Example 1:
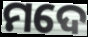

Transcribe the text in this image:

ମଦେ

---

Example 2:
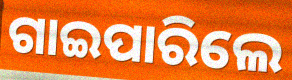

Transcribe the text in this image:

ଗାଇପାରିଲେ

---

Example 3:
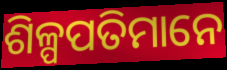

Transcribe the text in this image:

ଶିଳ୍ପପତିମାନେ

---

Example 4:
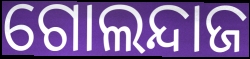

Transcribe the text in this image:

ଗୋଲନ୍ଦାଜ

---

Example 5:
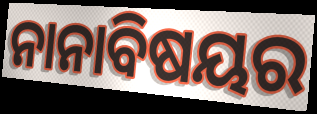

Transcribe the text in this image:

ନାନାବିଷୟର